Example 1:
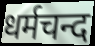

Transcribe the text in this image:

धर्मचन्द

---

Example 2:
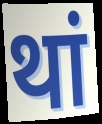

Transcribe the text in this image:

थां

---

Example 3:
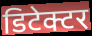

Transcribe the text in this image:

डिटेक्टर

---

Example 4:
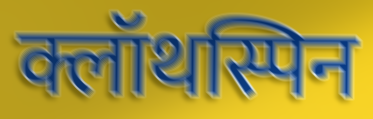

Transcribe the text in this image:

क्लॉथस्पिन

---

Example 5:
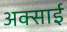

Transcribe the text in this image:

अक्साई